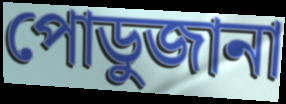
পোডুজানা